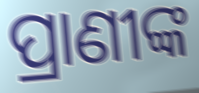
ପ୍ରାଣୀଙ୍କ